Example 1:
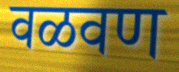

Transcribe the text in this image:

वळवण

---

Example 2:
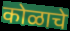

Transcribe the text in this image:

कोळाचे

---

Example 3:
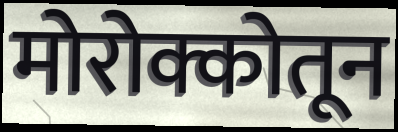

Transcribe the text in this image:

मोरोक्कोतून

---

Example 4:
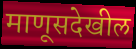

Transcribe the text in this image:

माणूसदेखील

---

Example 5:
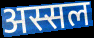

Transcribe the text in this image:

अस्सल